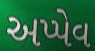
અપ્પેવ